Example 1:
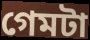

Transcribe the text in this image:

গেমটা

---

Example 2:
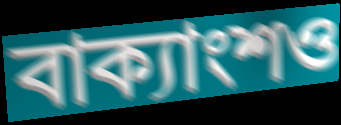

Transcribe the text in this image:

বাক্যাংশও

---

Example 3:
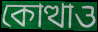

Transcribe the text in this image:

কোত্থাও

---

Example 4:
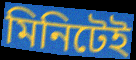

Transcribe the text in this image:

মিনিটেই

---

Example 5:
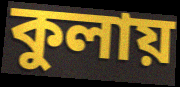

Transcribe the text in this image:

কুলায়